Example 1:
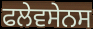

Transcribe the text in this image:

ਫਲੇਵਸੇਨਸ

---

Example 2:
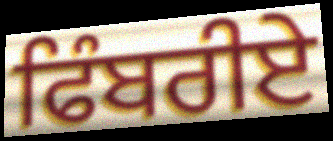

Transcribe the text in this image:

ਫਿੰਬਰੀਏ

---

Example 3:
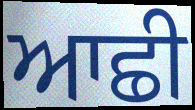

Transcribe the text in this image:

ਆਛੀ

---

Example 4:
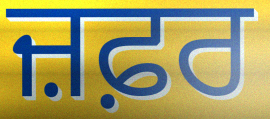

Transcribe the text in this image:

ਜ਼ਫ਼ਰ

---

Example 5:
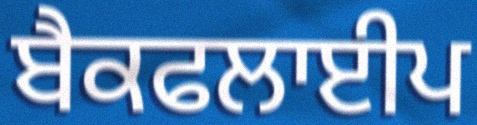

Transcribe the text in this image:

ਬੈਕਫਲਾਈਪ